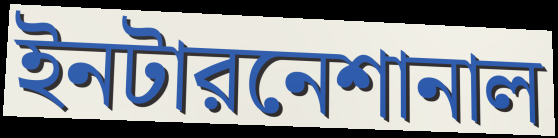
ইনটারনেশানাল